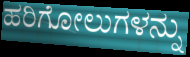
ಹರಿಗೋಲುಗಳನ್ನು